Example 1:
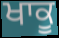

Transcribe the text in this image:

ਖਾਕੂ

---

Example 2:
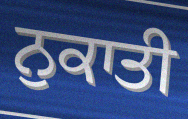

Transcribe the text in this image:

ਨੁਕਾਤੀ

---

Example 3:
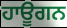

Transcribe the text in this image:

ਹਾਊਗਨ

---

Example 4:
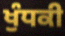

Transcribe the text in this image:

ਖੁੰਧਕੀ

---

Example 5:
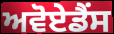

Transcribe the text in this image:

ਅਵੋਏਡੈਂਸ